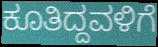
ಕೂತಿದ್ದವಳಿಗೆ